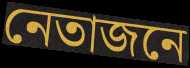
নেতাজনে